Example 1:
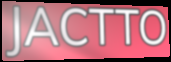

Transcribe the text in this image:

JACTTO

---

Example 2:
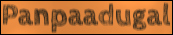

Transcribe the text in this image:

Panpaadugal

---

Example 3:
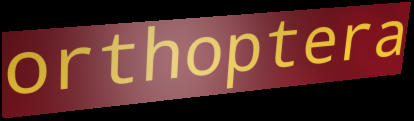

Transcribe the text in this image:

orthoptera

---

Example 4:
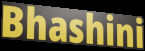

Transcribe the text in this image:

Bhashini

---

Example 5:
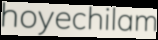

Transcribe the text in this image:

hoyechilam